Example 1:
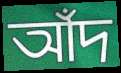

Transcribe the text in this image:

আঁদ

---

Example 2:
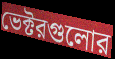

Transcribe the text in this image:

ভেক্টরগুলোর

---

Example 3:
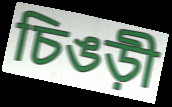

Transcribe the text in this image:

চিঙড়ী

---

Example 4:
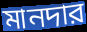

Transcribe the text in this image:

মানদার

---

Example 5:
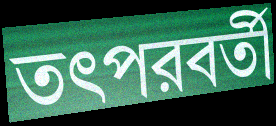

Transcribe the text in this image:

তৎপরবর্তী